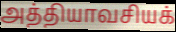
அத்தியாவசியக்